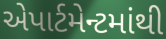
એપાર્ટમેન્ટમાંથી